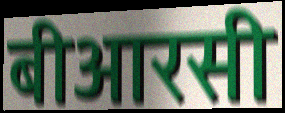
बीआरसी